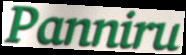
Panniru